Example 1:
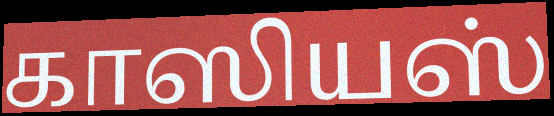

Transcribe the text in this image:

காஸியஸ்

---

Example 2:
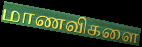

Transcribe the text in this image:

மாணவிகளை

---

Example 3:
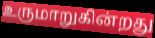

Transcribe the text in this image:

உருமாறுகின்றது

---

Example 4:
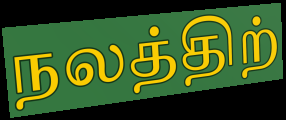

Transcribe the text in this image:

நலத்திற்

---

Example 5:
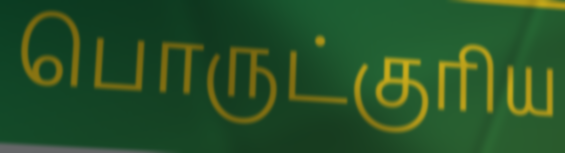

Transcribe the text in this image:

பொருட்குரிய